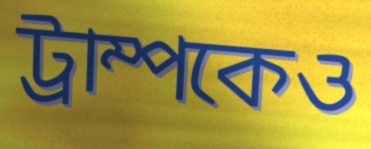
ট্রাম্পকেও